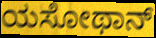
ಯಸೋಥಾನ್